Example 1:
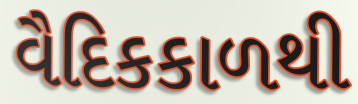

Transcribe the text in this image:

વૈદિકકાળથી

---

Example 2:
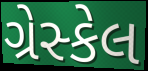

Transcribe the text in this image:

ગ્રેસ્કેલ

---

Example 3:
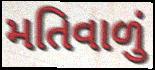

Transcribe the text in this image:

મતિવાળું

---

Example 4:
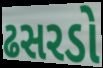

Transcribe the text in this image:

ઢસરડો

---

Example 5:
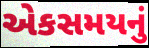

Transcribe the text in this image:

એકસમયનું